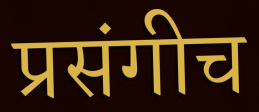
प्रसंगीच